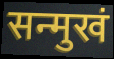
सन्मुखं